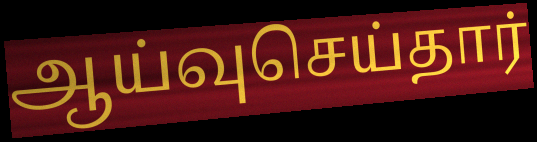
ஆய்வுசெய்தார்